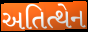
અતિત્થેન